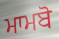
ਮਾਮਬੋ